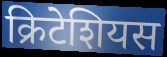
क्रिटेशियस